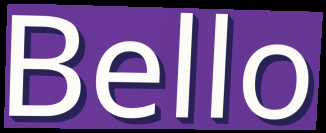
Bello